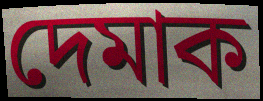
দেমাক